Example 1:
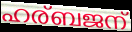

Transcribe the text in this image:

ഹര്ബജന്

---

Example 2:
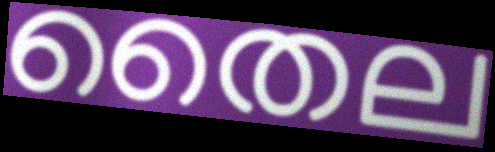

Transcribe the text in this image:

തൈല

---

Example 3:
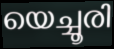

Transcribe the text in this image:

യെച്ചൂരി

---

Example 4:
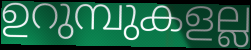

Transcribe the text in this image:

ഉറുമ്പുകളല്ല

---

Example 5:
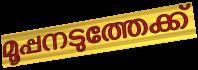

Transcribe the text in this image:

മൂപ്പനടുത്തേക്ക്